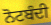
ਨੋਟਬੰਦੀ